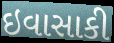
ઇવાસાકી